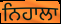
ਨਿਹਾਲਾ